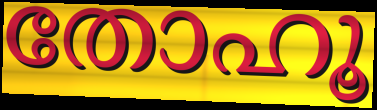
തോഹൂ